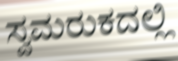
ಸ್ವಮರುಕದಲ್ಲಿ